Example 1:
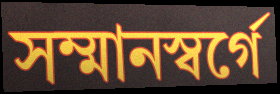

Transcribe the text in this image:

সম্মানস্বর্গে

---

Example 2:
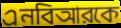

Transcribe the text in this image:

এনবিআরকে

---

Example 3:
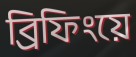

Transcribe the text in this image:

ব্রিফিংয়ে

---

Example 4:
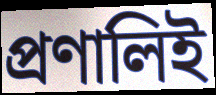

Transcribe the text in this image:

প্রণালিই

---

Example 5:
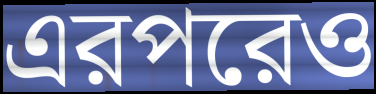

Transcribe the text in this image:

এরপরেও